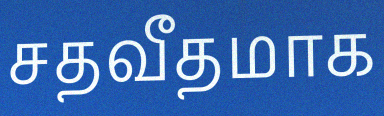
சதவீதமாக